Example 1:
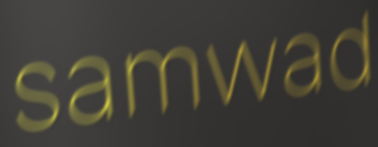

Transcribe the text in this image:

samwad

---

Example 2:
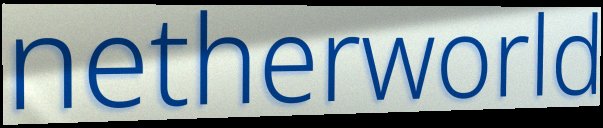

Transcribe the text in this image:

netherworld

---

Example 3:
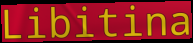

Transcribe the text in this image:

Libitina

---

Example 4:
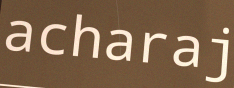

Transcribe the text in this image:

acharaj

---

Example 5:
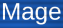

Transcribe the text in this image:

Mage